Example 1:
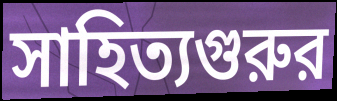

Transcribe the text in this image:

সাহিত্যগুরুর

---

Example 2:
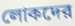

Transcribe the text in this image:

লোকদের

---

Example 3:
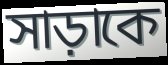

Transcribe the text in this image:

সাড়াকে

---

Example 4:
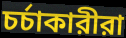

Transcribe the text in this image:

চর্চাকারীরা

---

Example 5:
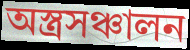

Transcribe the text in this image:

অস্ত্রসঞ্চালন